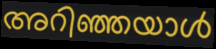
അറിഞ്ഞയാൾ